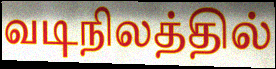
வடிநிலத்தில்